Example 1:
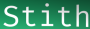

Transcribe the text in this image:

Stith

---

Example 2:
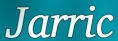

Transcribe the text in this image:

Jarric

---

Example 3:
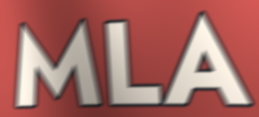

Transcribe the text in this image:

MLA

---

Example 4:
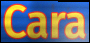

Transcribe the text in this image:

Cara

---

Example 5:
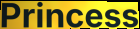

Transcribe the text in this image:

Princess